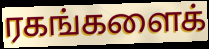
ரகங்களைக்